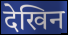
देखिन